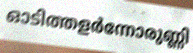
ഓടിത്തളർന്നോരുണ്ണി